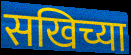
सखिच्या